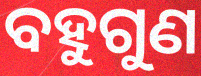
ବହୁଗୁଣ